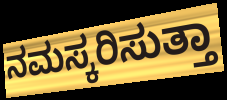
ನಮಸ್ಕರಿಸುತ್ತಾ